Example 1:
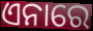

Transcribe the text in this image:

ଏନାରେ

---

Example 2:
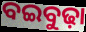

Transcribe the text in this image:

ବଇବୁଢ଼ା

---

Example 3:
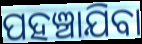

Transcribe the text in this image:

ପହଞ୍ଚାଯିବା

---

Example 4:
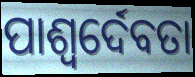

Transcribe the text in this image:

ପାଶ୍ୱର୍ଦେବତା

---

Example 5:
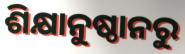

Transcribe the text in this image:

ଶିକ୍ଷାନୁଷ୍ଠାନରୁ